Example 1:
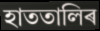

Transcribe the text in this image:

হাততালিৰ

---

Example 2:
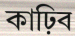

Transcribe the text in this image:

কাঢ়িব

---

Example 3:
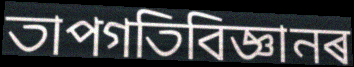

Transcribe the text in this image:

তাপগতিবিজ্ঞানৰ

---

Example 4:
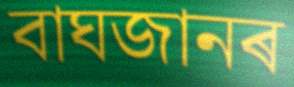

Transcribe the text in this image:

বাঘজানৰ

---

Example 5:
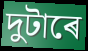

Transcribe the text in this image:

দুটাৰে